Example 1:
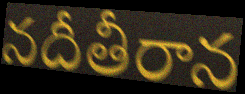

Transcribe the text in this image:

నదీతీరాన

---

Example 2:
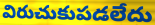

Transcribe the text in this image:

విరుచుకుపడలేదు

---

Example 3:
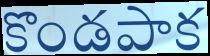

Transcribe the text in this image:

కొండపాక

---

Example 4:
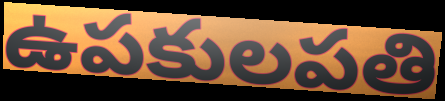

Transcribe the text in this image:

ఉపకులపతి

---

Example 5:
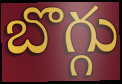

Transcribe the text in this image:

బొగ్గు